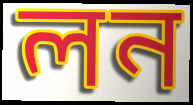
লন